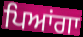
ਪਿਆਂਗਾ